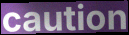
caution